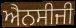
ਐਨਸੀਜੀ